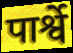
पार्श्वे